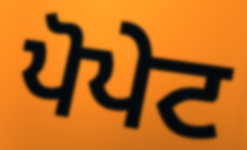
ਪੋਪੇਟ